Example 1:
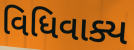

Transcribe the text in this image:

વિધિવાક્ય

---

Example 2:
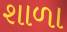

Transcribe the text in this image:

શાળા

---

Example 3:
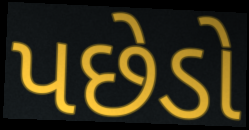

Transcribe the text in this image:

પછેડો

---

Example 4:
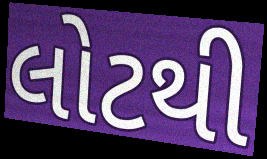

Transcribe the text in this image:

લોટથી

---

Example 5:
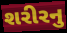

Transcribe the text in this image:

શરીરનુ